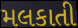
મલકાતી